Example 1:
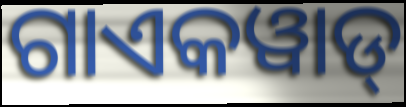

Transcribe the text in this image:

ଗାଏକୱାଡ୍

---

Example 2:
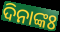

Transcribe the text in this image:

ଦିନାଙ୍କଃ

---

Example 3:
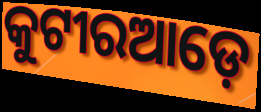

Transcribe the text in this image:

କୁଟୀରଆଡ଼େ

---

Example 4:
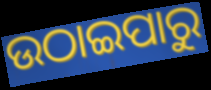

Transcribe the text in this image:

ଉଠାଇପାରୁ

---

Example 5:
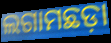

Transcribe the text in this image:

ଲଗାମଛଡ଼ା